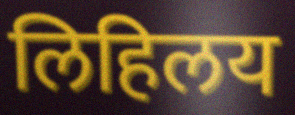
लिहिलय